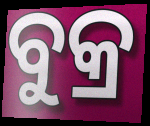
ବୁକ୍ର